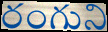
రంగుని